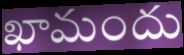
ఖామందు